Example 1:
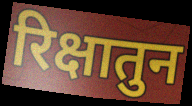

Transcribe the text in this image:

रिक्षातुन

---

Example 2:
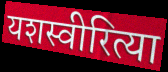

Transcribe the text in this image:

यशस्वीरित्या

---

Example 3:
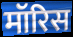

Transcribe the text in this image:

मॉरिस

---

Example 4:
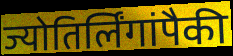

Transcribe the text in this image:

ज्योतिर्लिंगांपैकी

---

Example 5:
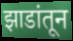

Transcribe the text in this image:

झाडांतून